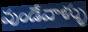
వుండేవాళ్ళు